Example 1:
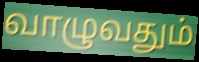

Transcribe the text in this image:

வாழுவதும்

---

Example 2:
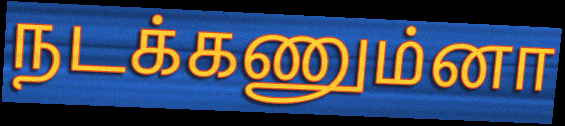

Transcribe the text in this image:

நடக்கணும்னா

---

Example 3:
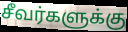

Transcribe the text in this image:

சீவர்களுக்கு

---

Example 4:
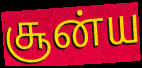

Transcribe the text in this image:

சூன்ய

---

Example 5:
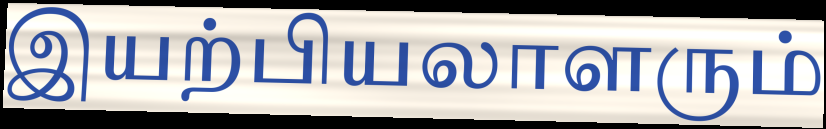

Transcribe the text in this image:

இயற்பியலாளரும்